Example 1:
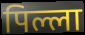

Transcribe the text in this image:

पिल्ला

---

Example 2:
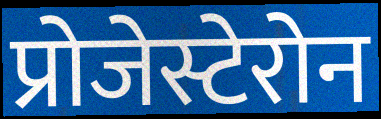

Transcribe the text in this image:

प्रोजेस्टेरोन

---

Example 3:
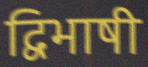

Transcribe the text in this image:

द्विभाषी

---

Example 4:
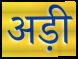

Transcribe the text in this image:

अड़ी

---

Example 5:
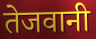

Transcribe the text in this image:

तेजवानी